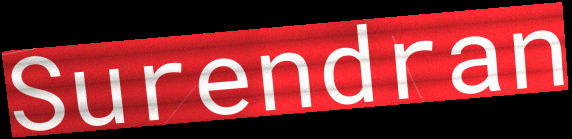
Surendran